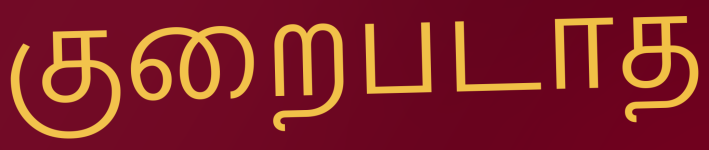
குறைபடாத